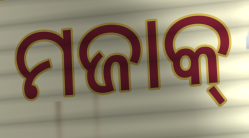
ମଜାକ୍